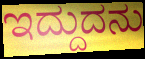
ಇದ್ದುದನು